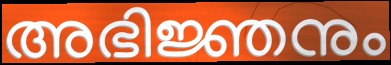
അഭിജ്ഞനും